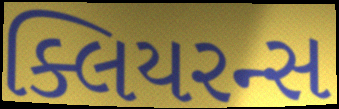
ક્લિયરન્સ